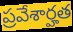
ప్రవేశార్హత